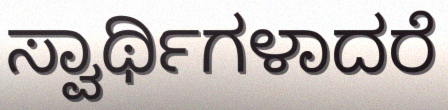
ಸ್ವಾರ್ಥಿಗಳಾದರೆ